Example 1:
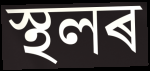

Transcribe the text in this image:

স্থলৰ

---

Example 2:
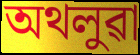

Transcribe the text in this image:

অথলুৱা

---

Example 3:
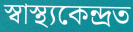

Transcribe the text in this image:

স্বাস্থ্যকেন্দ্ৰত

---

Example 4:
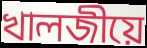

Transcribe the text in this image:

খালজীয়ে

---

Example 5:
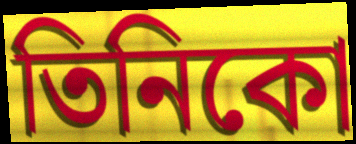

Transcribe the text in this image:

তিনিকো